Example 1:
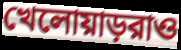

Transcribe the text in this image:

খেলোয়াড়রাও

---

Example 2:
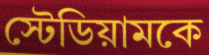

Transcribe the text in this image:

স্টেডিয়ামকে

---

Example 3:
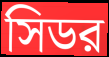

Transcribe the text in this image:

সিডর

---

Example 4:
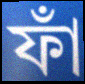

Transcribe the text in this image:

ফাঁ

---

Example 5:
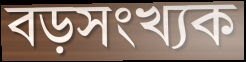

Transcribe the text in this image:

বড়সংখ্যক